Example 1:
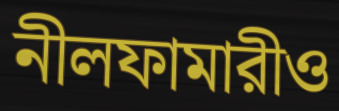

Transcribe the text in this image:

নীলফামারীও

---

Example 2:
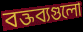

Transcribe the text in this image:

বক্তব্যগুলো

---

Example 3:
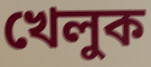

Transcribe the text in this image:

খেলুক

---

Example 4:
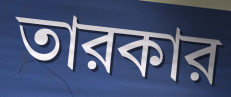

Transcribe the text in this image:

তারকার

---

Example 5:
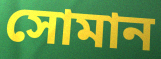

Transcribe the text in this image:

সোমান